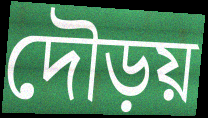
দৌড়য়